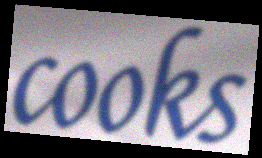
cooks